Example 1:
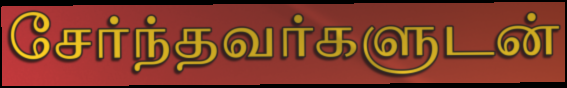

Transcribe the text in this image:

சேர்ந்தவர்களுடன்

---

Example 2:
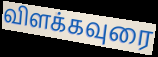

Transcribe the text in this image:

விளக்கவுரை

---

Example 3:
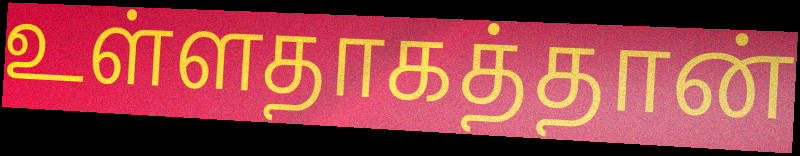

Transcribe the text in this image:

உள்ளதாகத்தான்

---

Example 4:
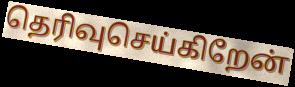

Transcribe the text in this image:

தெரிவுசெய்கிறேன்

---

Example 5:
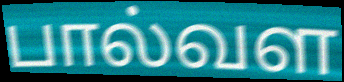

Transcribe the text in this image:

பால்வள